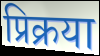
प्रिक्रया